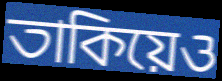
তাকিয়েও